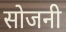
सोजनी